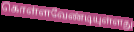
கொள்ளவேண்டியுள்ளது